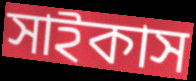
সাইকাস